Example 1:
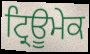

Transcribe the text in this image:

ਟ੍ਰਿਊਮੇਕ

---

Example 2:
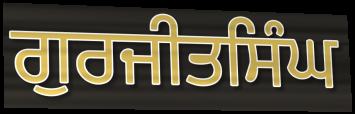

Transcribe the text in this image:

ਗੁਰਜੀਤਸਿੰਘ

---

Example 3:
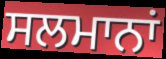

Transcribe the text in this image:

ਸਲਮਾਨਾਂ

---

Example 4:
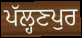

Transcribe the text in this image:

ਪੱਲ੍ਹਣਪੁਰ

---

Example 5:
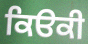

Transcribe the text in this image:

ਕਿੳਕੀ